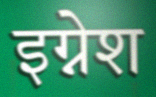
इग्नेश